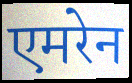
एमरेन